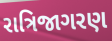
રાત્રિજાગરણ